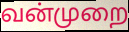
வன்முறை